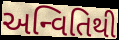
અન્વિતિથી